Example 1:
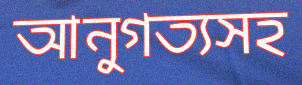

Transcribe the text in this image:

আনুগত্যসহ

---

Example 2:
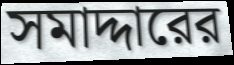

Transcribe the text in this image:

সমাদ্দারের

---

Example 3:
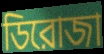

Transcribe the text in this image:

ডিরোজা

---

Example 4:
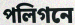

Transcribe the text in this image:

পলিগনে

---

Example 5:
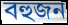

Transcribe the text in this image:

বহুজন